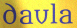
daula